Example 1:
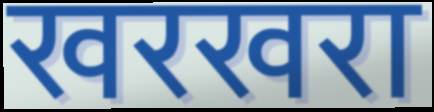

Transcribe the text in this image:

खरखरा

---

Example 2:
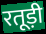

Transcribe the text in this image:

रतूड़ी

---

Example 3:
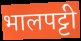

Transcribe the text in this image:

भालपट्टी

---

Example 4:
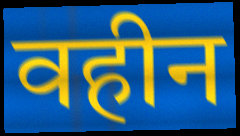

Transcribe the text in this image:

वहीन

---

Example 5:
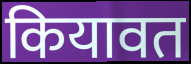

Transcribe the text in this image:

कियावत